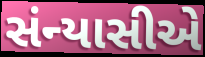
સંન્યાસીએ